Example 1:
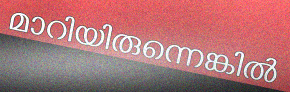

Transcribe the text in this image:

മാറിയിരുന്നെങ്കിൽ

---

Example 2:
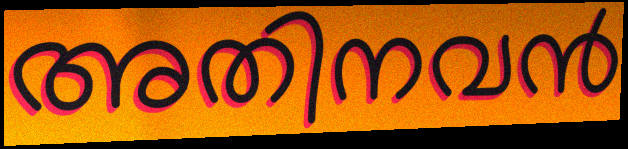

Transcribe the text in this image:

അതിനവൻ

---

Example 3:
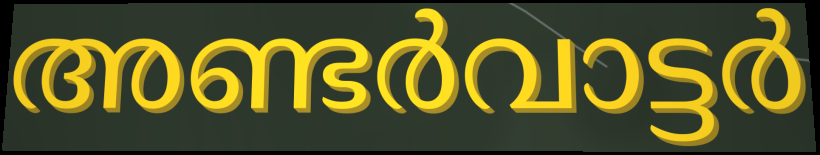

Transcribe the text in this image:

അണ്ടർവാട്ടർ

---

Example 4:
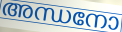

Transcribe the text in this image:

അന്ധനോ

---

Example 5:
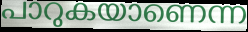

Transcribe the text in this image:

പാറുകയാണെന്ന